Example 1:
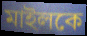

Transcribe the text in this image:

মাইলকে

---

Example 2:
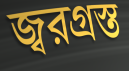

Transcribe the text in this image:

জ্বরগ্রস্ত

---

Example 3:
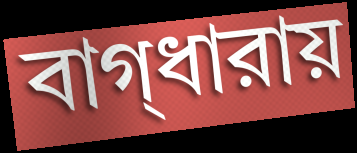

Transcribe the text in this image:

বাগ্‌ধারায়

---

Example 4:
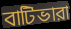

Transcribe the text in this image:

বাটিভারা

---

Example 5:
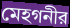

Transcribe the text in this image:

মেহগনীর